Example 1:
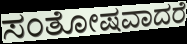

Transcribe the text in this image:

ಸಂತೋಷವಾದರೆ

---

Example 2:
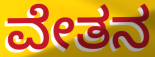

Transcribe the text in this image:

ವೇತನ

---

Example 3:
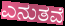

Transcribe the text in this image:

ಎನುತವೆ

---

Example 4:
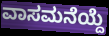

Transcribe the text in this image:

ವಾಸಮನೆಯ್ದೆ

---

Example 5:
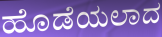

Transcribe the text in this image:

ಹೊಡೆಯಲಾದ